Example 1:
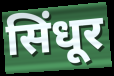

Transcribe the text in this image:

सिंधूर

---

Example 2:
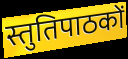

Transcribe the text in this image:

स्तुतिपाठकों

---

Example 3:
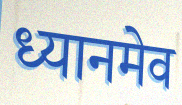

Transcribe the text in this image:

ध्यानमेव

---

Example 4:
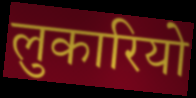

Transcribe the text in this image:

लुकारियो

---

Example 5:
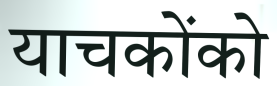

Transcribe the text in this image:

याचकोंको